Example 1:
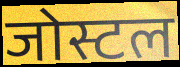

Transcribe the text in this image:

जोस्टल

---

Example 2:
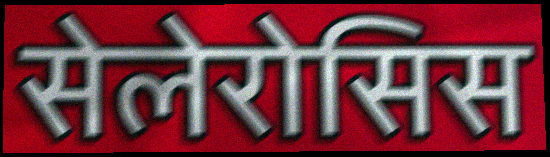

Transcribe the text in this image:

सेलेरोसिस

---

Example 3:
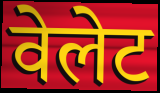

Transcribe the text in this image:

वेलेट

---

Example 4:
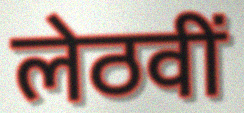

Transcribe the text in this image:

लेठवीं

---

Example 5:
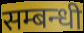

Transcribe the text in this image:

सम्‍बन्‍धी